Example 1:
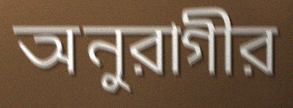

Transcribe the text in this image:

অনুরাগীর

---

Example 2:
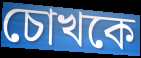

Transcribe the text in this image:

চোখকে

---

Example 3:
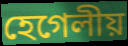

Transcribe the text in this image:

হেগেলীয়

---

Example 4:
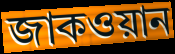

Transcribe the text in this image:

জাকওয়ান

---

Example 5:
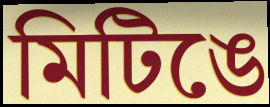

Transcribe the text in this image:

মিটিঙে